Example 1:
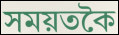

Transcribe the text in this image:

সময়তকৈ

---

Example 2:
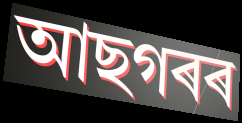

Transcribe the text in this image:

আছগৰৰ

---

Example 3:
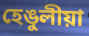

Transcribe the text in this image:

হেঙুলীয়া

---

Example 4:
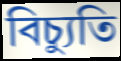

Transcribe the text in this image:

বিচ্যুতি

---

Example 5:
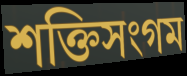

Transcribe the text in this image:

শক্তিসংগম